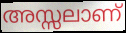
അസ്സലാണ്